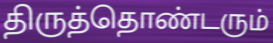
திருத்தொண்டரும்